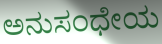
ಅನುಸಂಧೇಯ